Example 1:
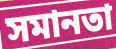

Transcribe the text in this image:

সমানতা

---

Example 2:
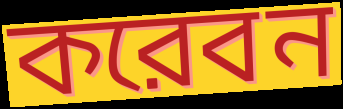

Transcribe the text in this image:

করেবন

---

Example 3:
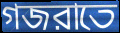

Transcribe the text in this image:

গজরাতে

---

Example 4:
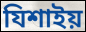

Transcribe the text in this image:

যিশাইয়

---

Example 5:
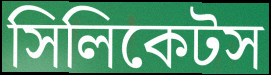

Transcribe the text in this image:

সিলিকেটস